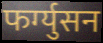
फर्ग्युसन